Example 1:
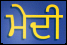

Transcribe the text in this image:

ਮੇਦੀ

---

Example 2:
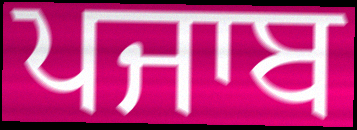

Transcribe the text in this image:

ਪਜਾਬ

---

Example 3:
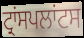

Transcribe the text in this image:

ਟ੍ਰਾਂਸਪਲਾਂਟਸ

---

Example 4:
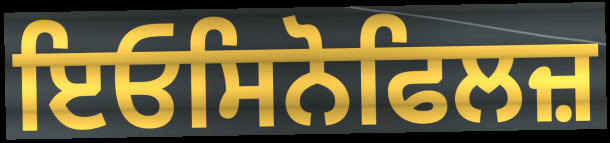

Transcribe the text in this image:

ਇਓਸਿਨੋਫਿਲਜ਼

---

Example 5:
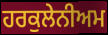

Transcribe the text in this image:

ਹਰਕੁਲੇਨੀਅਮ